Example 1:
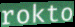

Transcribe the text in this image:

rokto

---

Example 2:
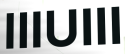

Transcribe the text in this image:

IIIUIII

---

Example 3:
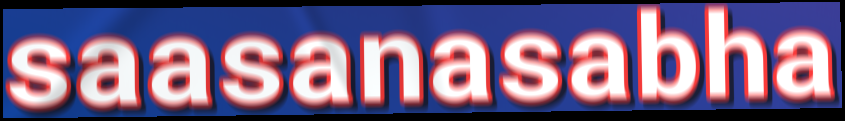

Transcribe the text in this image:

saasanasabha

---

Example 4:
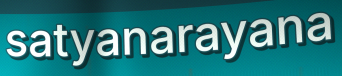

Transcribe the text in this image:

satyanarayana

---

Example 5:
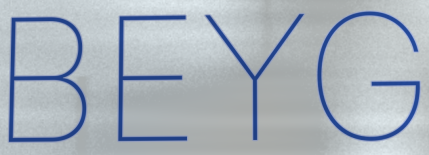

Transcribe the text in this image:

BEYG